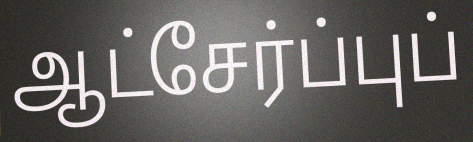
ஆட்சேர்ப்புப்